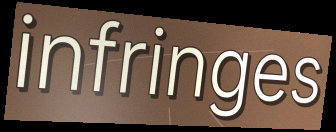
infringes